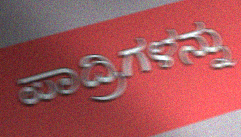
ಪಾದ್ರಿಗಳನ್ನು